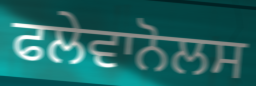
ਫਲੇਵਾਨੋਲਸ